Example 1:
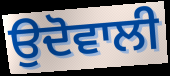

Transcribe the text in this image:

ਉਦੋਵਾਲੀ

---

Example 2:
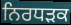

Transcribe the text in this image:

ਨਿਰਧੜਕ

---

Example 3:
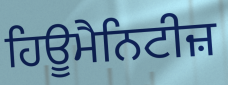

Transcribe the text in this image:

ਹਿਊਮੈਨਿਟੀਜ਼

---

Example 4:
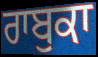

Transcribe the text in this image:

ਰਾਬੁਕਾ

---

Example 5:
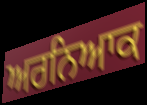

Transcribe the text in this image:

ਅਰਨਿਆਕ